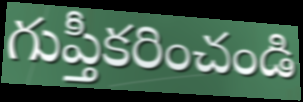
గుప్తీకరించండి